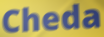
Cheda